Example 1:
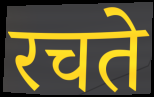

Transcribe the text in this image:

रचते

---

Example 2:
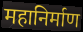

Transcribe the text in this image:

महानिर्माण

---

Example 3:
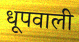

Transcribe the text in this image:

धूपवाली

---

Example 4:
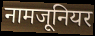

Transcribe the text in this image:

नामजूनियर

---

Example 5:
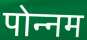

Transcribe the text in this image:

पोन्नम